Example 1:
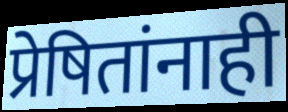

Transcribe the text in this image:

प्रेषितांनाही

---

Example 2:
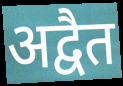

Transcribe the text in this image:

अद्वैत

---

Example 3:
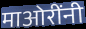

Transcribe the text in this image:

माओरींनी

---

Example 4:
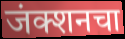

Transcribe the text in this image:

जंक्शनचा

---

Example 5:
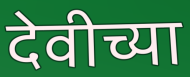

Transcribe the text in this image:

देवीच्या